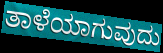
ತಾಳೆಯಾಗುವುದು